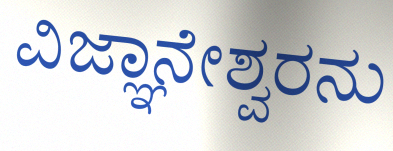
ವಿಜ್ಞಾನೇಶ್ವರನು